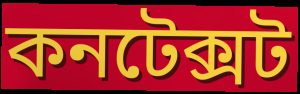
কনটেক্সট